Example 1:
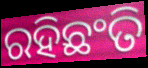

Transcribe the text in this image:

ରହିଛଂତି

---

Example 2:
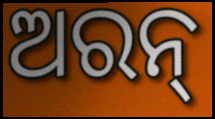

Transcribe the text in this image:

ଅରନ୍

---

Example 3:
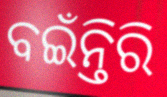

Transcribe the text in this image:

ବଇଁନ୍ତିରି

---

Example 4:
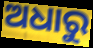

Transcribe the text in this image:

ଅଧାରୁ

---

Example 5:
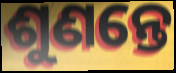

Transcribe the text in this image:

ଶୁଣନ୍ତେ